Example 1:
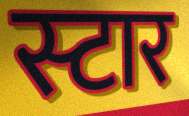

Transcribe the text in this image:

स्‍टार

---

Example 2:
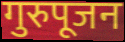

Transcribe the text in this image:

गुरुपूजन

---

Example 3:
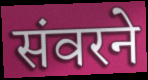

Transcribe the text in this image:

संवरने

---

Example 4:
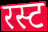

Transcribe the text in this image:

रस्ट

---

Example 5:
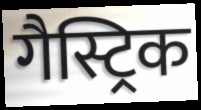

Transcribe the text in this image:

गैस्ट्रिक